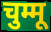
चुम्मू